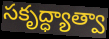
సకృద్ధ్యాత్వా